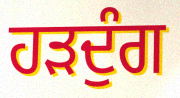
ਹੜਦੁੰਗ